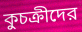
কুচক্রীদের